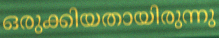
ഒരുക്കിയതായിരുന്നു